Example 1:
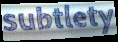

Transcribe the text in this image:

subtlety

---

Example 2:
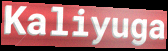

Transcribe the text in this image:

Kaliyuga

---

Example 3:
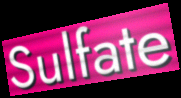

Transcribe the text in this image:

Sulfate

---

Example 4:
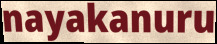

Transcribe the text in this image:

nayakanuru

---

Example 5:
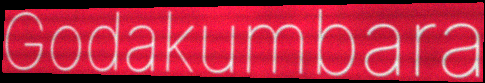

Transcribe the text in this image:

Godakumbara